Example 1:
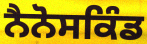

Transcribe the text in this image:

ਨੈਨੋਸਕਿੰਡ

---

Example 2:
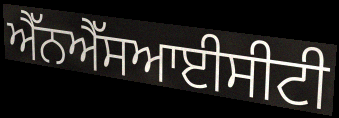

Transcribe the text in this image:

ਐੱਨਐੱਸਆਈਸੀਟੀ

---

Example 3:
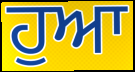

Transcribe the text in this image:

ਹੁਆ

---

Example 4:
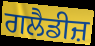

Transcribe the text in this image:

ਗਲੈਡੀਜ਼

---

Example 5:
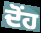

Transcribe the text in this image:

ਦੋਂਹ